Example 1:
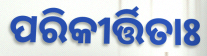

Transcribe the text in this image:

ପରିକୀର୍ତ୍ତିତାଃ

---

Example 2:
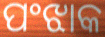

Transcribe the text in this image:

ପଂଝାକ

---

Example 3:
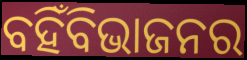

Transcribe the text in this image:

ବହିଁବିଭାଜନର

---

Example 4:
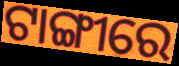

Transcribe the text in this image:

ଟାଙ୍ଗୀରେ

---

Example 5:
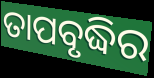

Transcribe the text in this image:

ତାପବୃଦ୍ଧିର